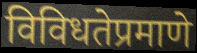
विविधतेप्रमाणे